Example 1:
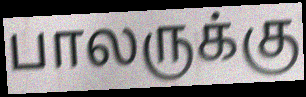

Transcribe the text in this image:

பாலருக்கு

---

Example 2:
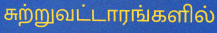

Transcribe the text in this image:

சுற்றுவட்டாரங்களில்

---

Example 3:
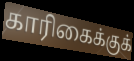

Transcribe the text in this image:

காரிகைக்குக்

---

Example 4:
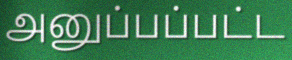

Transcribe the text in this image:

அனுப்பப்பட்ட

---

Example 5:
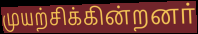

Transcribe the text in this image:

முயற்சிக்கின்றனர்